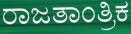
ರಾಜತಾಂತ್ರಿಕ